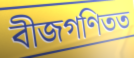
বীজগণিতত